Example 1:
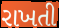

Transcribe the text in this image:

રાખતી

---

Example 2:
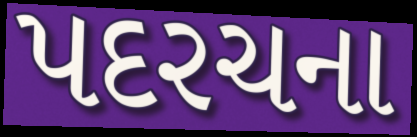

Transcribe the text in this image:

પદરચના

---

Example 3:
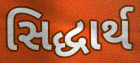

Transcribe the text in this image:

સિદ્ધાર્થ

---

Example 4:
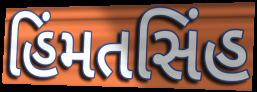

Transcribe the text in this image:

હિંમતસિંહ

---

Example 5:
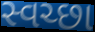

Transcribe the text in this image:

સ્વચ્છા